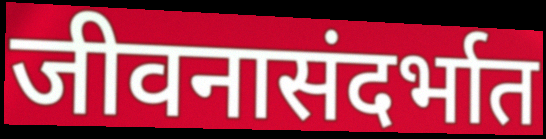
जीवनासंदर्भात